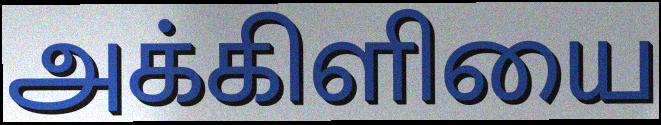
அக்கிளியை